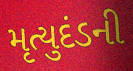
મૃત્યુદંડની